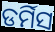
ଡର୍ମିସ